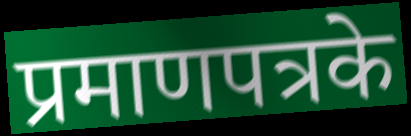
प्रमाणपत्रके